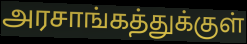
அரசாங்கத்துக்குள்